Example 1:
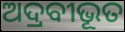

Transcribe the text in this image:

ଅଦ୍ରବୀଭୂତ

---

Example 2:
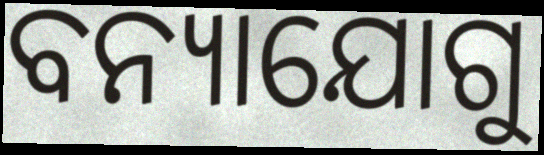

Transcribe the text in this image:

ବନ୍ୟାଯୋଗୁ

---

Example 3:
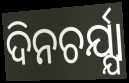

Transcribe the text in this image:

ଦିନଚର୍ଯ୍ଯା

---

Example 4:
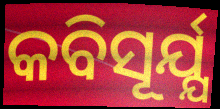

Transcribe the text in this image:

କବିସୂର୍ଯ୍ଯ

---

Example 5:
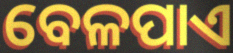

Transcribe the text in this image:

ବେଳପାଏ